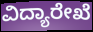
ವಿದ್ಯಾರೇಖೆ